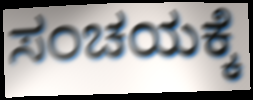
ಸಂಚಯಕ್ಕೆ